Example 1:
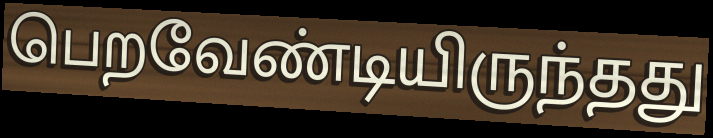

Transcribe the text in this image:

பெறவேண்டியிருந்தது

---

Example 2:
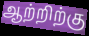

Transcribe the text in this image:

ஆற்றிற்கு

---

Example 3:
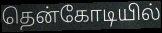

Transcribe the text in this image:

தென்கோடியில்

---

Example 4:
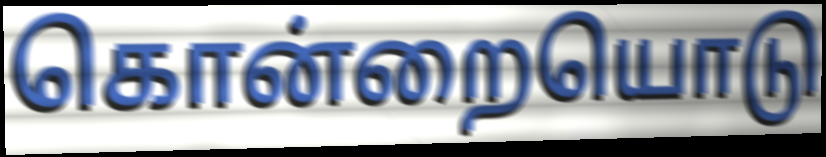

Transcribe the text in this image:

கொன்றையொடு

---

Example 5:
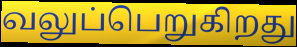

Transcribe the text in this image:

வலுப்பெறுகிறது